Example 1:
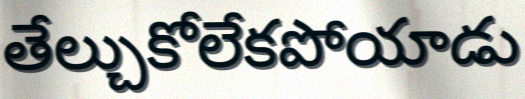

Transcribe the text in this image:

తేల్చుకోలేకపోయాడు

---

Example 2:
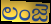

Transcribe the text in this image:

లంజె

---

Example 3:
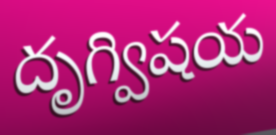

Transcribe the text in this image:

దృగ్విషయ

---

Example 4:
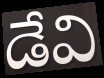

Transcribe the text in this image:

డేవి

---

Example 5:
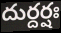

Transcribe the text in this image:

దుర్దర్షః